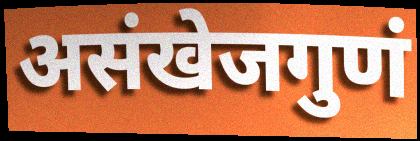
असंखेजगुणं